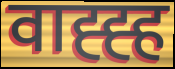
वाह्ह्ह